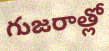
గుజరాత్లో